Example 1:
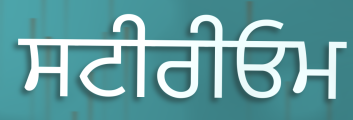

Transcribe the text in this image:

ਸਟੀਰੀਓਮ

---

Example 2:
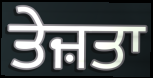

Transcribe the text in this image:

ਤੇਜ਼ਤਾ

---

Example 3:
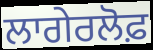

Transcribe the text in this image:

ਲਾਗੇਰਲੋਫ਼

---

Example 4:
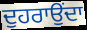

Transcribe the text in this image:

ਦੁਹਰਾਉਂਦਾ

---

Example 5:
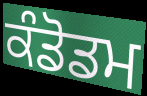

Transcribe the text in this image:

ਕੰਡੋਡਮ